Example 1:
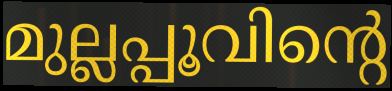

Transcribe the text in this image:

മുല്ലപ്പൂവിന്റെ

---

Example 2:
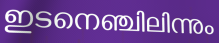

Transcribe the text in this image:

ഇടനെഞ്ചിലിന്നും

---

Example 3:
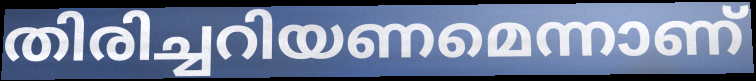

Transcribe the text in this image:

തിരിച്ചറിയണമെന്നാണ്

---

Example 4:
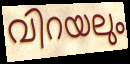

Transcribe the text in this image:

വിറയലും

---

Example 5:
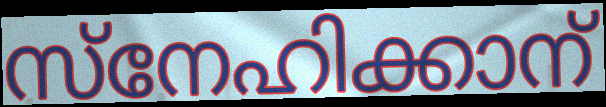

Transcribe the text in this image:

സ്നേഹിക്കാന്